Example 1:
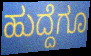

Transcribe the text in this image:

ಹುದ್ದೆಗೂ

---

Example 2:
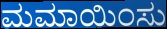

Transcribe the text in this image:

ಮಮಾಯಿಂಸು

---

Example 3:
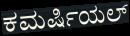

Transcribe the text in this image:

ಕಮರ್ಷಿಯಲ್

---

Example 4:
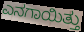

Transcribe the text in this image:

ಎನಗಾಯಿತ್ತು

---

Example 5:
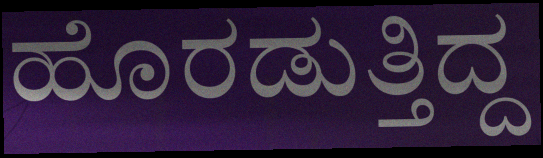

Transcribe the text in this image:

ಹೊರಡುತ್ತಿದ್ದ